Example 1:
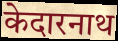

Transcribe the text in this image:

केदारनाथ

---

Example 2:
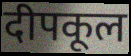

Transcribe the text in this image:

दीपकूल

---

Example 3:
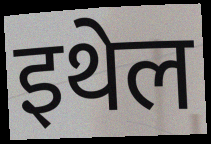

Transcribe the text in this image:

इथेल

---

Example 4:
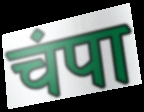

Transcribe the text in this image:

चंपा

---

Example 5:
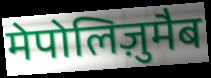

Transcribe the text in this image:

मेपोलिज़ुमैब